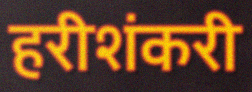
हरीशंकरी